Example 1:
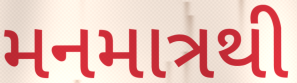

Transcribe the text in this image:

મનમાત્રથી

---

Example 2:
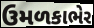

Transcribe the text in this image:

ઉમળકાભેર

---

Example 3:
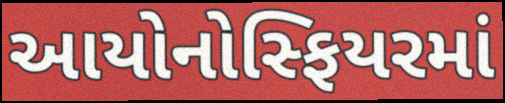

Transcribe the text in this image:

આયોનોસ્ફિયરમાં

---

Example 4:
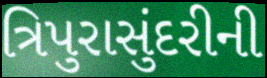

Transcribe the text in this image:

ત્રિપુરાસુંદરીની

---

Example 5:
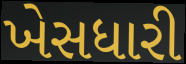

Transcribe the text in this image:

ખેસધારી